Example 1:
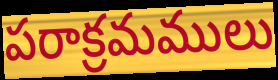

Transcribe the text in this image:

పరాక్రమములు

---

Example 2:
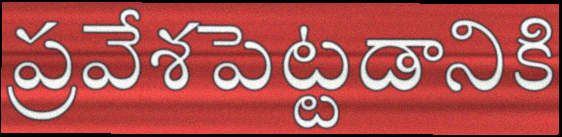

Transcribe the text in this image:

ప్రవేశపెట్టడానికి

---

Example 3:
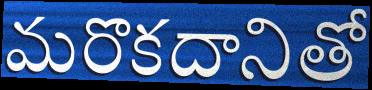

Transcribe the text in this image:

మరొకదానితో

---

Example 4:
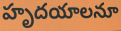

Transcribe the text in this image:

హృదయాలనూ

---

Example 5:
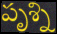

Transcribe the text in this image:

పృశ్ని